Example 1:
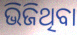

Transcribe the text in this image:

ଭିଜିଥିବା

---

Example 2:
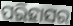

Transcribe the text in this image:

ପରିହାସର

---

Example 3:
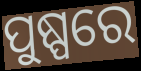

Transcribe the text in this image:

ପୁଷ୍ପରେ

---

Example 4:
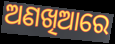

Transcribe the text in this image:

ଅଣଖିଆରେ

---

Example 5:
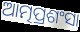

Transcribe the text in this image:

ଆତ୍ମପ୍ରଶଂସା